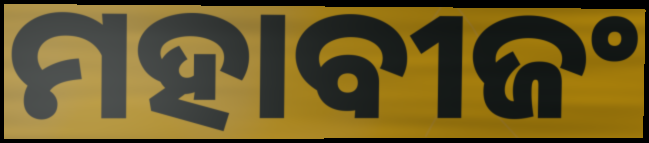
ମହାବୀଜଂ